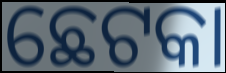
ଛେଟକା